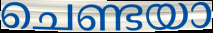
ചെണ്ടയാ